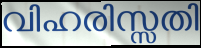
വിഹരിസ്സതി